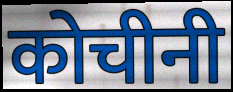
कोचीनी